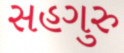
સહગુરુ